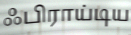
ஃபிராய்டிய